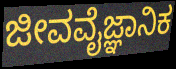
ಜೀವವೈಜ್ಞಾನಿಕ